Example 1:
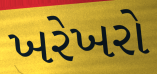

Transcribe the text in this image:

ખરેખરો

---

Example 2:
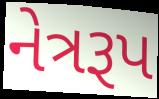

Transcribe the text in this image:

નેત્રરૂપ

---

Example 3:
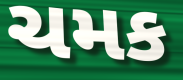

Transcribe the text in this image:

ચમક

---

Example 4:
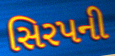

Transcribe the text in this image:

સિરપની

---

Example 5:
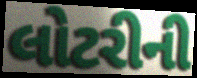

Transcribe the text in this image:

લોટરીની